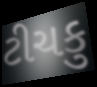
ટીચકુ